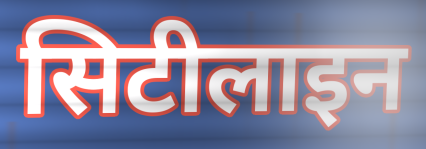
सिटीलाइन